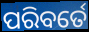
ପରିବର୍ତେ